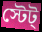
স্টেট্